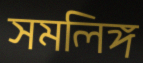
সমলিঙ্গ